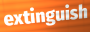
extinguish